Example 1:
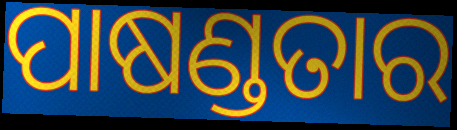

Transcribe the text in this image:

ପାଷଣ୍ଡତାର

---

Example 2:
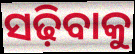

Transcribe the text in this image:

ସଢ଼ିବାକୁ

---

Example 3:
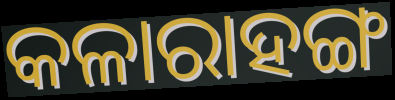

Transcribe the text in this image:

କଳାରାହଙ୍ଗ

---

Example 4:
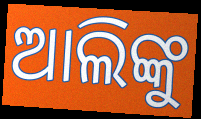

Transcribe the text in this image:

ଆଲିଙ୍କୁ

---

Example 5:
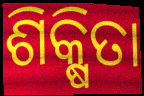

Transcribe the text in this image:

ଶିକ୍ଷିତା